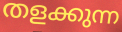
തളക്കുന്ന